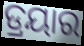
ଡ୍ରୟାର